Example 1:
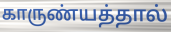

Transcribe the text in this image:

காருண்யத்தால்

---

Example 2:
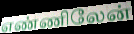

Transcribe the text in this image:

எண்ணிலேன்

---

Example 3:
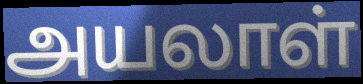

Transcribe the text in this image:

அயலாள்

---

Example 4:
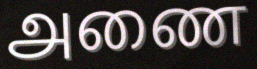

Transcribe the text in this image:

அணை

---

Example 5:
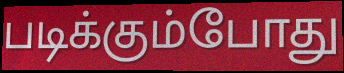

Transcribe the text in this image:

படிக்கும்போது